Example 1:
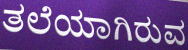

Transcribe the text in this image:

ತಲೆಯಾಗಿರುವ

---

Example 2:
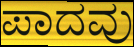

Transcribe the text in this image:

ಪಾದವು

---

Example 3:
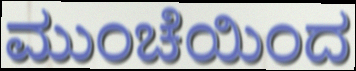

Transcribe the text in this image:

ಮುಂಚೆಯಿಂದ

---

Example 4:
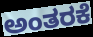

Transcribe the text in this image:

ಅಂತರಕೆ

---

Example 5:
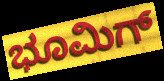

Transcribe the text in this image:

ಭೂಮಿಗ್